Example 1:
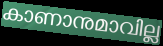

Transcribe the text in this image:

കാണാനുമാവില്ല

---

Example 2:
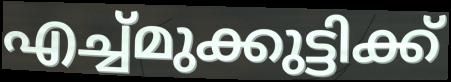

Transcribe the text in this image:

എച്ച്മുക്കുട്ടിക്ക്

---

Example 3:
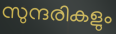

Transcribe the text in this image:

സുന്ദരികളും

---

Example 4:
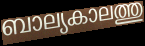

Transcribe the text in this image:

ബാല്യകാലത്തു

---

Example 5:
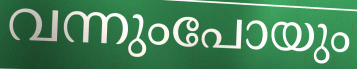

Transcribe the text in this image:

വന്നുംപോയും